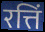
रत्तिं